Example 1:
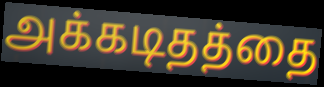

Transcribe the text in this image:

அக்கடிதத்தை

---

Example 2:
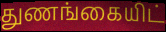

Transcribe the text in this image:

துணங்கையிட்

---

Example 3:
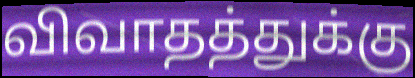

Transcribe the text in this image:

விவாதத்துக்கு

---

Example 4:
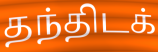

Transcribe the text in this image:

தந்திடக்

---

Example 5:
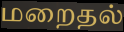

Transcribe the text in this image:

மறைதல்